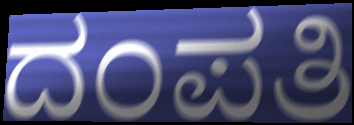
ದಂಪತಿ